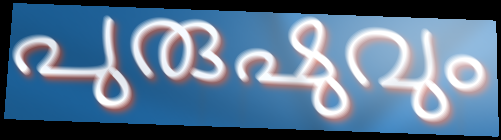
പുരുഷുവും